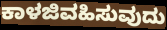
ಕಾಳಜಿವಹಿಸುವುದು